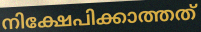
നിക്ഷേപിക്കാത്തത്